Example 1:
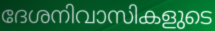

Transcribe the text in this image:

ദേശനിവാസികളുടെ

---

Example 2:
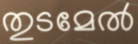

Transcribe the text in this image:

തുടമേൽ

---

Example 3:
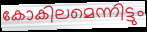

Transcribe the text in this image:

കോകിലമെന്നിട്ടും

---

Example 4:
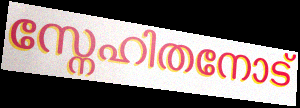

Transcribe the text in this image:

സ്നേഹിതനോട്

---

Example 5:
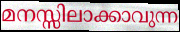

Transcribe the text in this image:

മനസ്സിലാക്കാവുന്ന